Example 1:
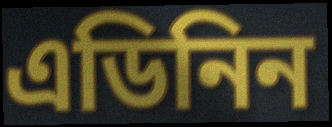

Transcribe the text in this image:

এডিনিন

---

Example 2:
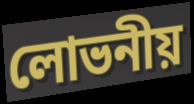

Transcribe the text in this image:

লোভনীয়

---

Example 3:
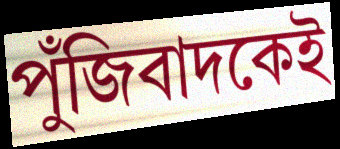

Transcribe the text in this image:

পুঁজিবাদকেই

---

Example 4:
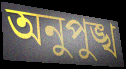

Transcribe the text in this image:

অনুপুঙ্খ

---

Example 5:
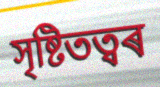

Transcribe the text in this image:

সৃষ্টিতত্বৰ